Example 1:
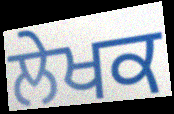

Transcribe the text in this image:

ਲੇਖਕ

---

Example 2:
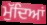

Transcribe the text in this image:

ਮੁੱਦਿਆਂ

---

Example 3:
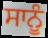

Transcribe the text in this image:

ਸਾਨੂੰ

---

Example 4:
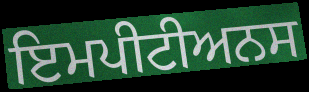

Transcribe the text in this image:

ਇਮਪੀਟੀਅਨਸ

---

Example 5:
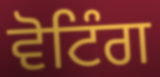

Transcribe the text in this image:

ਵੋਟਿੰਗ